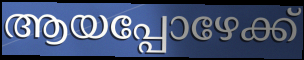
ആയപ്പോഴേക്ക്